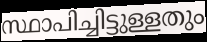
സ്ഥാപിച്ചിട്ടുള്ളതും